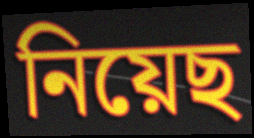
নিয়েছ